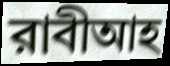
রাবীআহ